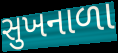
સુખનાળા